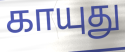
காயுது